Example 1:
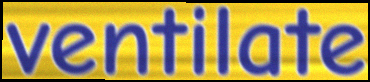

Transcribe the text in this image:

ventilate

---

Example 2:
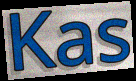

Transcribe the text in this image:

Kas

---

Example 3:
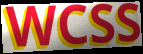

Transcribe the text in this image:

WCSS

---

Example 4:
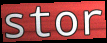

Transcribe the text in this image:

stor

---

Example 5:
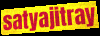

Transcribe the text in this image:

satyajitray